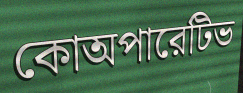
কোঅপারেটিভ